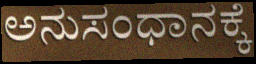
ಅನುಸಂಧಾನಕ್ಕೆ